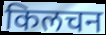
किलचन